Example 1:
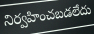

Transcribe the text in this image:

నిర్వహించబడలేదు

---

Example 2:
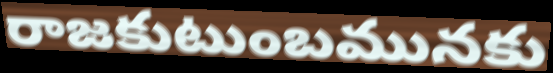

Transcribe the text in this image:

రాజకుటుంబమునకు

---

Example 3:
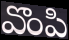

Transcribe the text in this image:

వొంపి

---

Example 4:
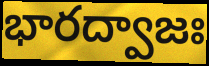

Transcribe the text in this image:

భారద్వాజః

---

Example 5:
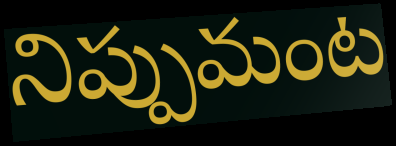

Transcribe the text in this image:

నిప్పుమంట